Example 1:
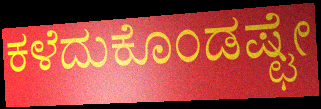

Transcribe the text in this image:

ಕಳೆದುಕೊಂಡಷ್ಟೇ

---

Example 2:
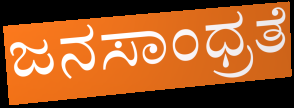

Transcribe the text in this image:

ಜನಸಾಂಧ್ರತೆ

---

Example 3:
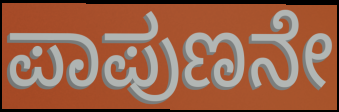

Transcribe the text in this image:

ಪಾಪುಣನೇ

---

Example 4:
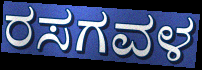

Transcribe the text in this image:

ರಸಗವಳ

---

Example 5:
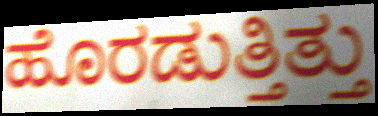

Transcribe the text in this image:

ಹೊರಡುತ್ತಿತ್ತು